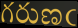
గరుణఁ